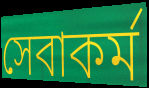
সেবাকর্ম